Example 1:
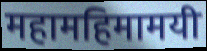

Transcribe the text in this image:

महामहिमामयी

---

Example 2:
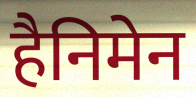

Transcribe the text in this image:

हैनिमेन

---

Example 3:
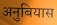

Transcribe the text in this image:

अनुबियास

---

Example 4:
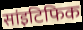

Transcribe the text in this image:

सांइटिफिक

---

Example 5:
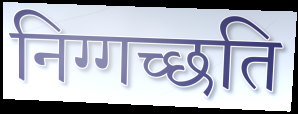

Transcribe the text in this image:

निग्गच्छति